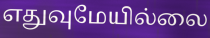
எதுவுமேயில்லை